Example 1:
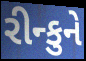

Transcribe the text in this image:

રીન્કુને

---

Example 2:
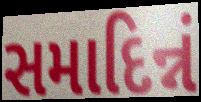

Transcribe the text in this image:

સમાદિન્નં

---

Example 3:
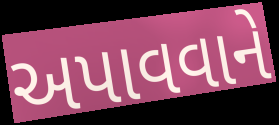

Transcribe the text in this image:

અપાવવાને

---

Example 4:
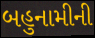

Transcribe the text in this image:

બહુનામીની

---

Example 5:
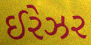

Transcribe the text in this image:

ઈરેઝર